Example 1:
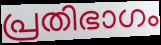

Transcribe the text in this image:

പ്രതിഭാഗം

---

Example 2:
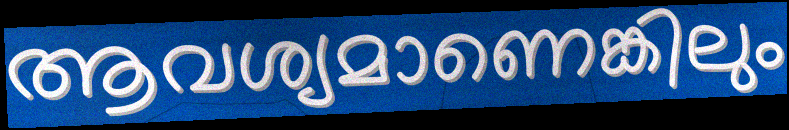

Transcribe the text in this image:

ആവശ്യമാണെങ്കിലും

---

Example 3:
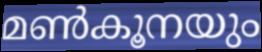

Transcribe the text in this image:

മൺകൂനയും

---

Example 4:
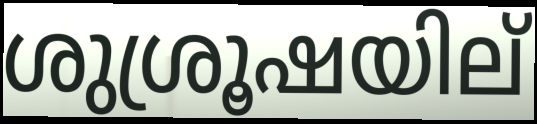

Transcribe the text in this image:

ശുശ്രൂഷയില്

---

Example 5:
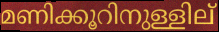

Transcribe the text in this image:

മണിക്കൂറിനുള്ളില്